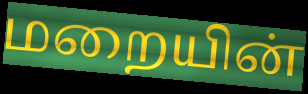
மறையின்